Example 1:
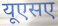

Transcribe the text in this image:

यूएसए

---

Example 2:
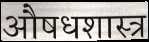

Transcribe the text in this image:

औषधशास्त्र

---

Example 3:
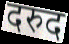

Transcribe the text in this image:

दरुद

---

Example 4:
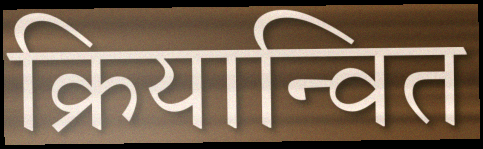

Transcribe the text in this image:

क्रियान्वित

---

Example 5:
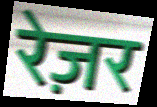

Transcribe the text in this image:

रेज़र